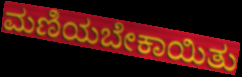
ಮಣಿಯಬೇಕಾಯಿತು